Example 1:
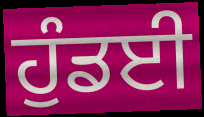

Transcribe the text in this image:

ਹੁੰਡਈ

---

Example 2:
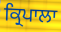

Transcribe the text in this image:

ਕ੍ਰਿਪਾਲਾ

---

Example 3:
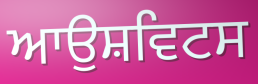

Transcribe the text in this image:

ਆਉਸ਼ਵਿਟਸ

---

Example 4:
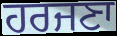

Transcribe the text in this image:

ਹਰਜਣਾ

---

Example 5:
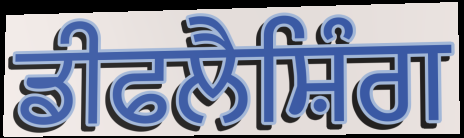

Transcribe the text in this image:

ਡੀਫਲੈਸ਼ਿੰਗ